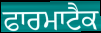
ਫਾਰਮਾਟੈਕ